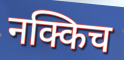
नक्किच